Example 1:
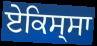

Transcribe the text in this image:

ਏਕਿਸ੍ਸਾ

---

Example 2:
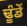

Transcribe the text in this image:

ਢੂੰਡੇਂ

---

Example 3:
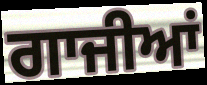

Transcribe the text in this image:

ਗਾਜੀਆਂ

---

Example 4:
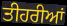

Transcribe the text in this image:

ਤੀਹਰੀਆਂ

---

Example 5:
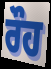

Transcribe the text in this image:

ਰੌਹ